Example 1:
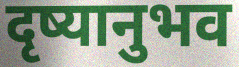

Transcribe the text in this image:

दृष्यानुभव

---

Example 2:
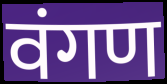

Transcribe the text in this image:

वंगण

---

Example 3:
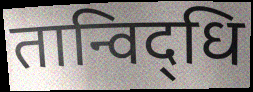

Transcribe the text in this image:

तान्विद्धि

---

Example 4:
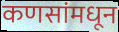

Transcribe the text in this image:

कणसांमधून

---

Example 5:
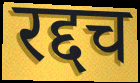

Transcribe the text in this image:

रद्दच